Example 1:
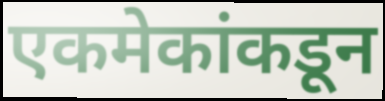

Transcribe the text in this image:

एकमेकांकडून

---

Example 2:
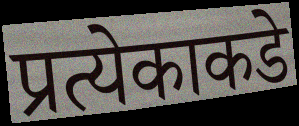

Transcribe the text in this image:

प्रत्येकाकडे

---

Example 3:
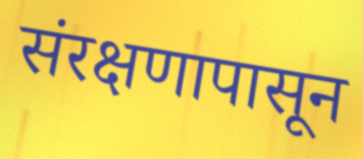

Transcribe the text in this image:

संरक्षणापासून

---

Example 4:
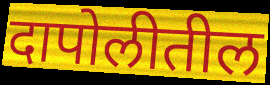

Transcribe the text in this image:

दापोलीतील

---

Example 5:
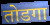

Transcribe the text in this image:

तोडगा